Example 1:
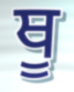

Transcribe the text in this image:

ਥੂ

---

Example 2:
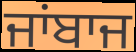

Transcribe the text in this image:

ਜਾਂਬਾਜ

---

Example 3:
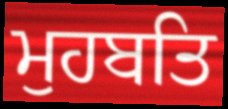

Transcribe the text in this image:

ਮੁਹਬਤਿ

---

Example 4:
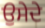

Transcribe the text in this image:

ਉਸੇਦੇ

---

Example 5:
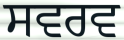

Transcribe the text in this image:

ਸਵਰਵ